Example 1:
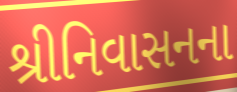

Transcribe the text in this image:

શ્રીનિવાસનના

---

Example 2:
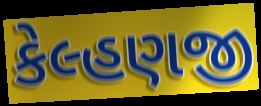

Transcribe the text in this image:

કેલ્હણજી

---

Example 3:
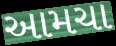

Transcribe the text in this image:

આમચા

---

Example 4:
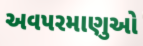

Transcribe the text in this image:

અવપરમાણુઓ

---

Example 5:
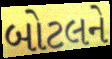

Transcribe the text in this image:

બોટલને